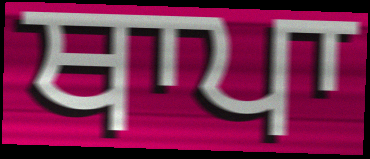
ਥਾਪਾ